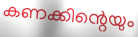
കണക്കിന്റെയും